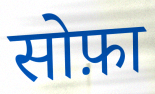
सोफ़ा